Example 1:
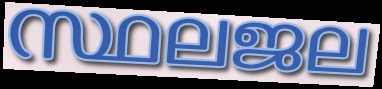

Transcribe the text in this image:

സ്ഥലജല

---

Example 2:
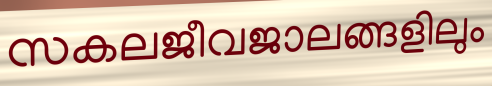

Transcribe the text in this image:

സകലജീവജാലങ്ങളിലും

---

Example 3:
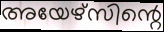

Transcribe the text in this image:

അയേഴ്സിന്റെ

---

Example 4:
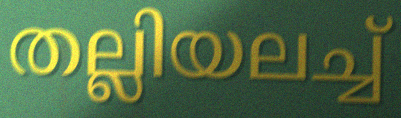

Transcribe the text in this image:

തല്ലിയലച്ച്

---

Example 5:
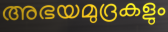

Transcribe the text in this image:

അഭയമുദ്രകളും